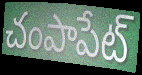
చంపాపేట్